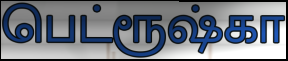
பெட்ரூஷ்கா